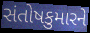
સંતોષકુમારને